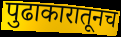
पुढाकारातूनच